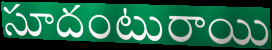
సూదంటురాయి